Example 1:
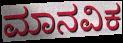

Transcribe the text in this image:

ಮಾನವಿಕ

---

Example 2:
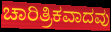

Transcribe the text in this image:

ಚಾರಿತ್ರಿಕವಾದವು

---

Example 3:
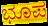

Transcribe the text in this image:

ಭೂಪ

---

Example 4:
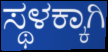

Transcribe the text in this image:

ಸ್ಥಳಕ್ಕಾಗಿ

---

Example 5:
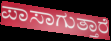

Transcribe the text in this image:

ಪಾಸಾಗುತ್ತಾರೆ